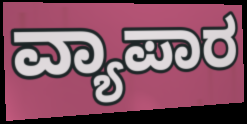
ವ್ಯಾಪಾರ